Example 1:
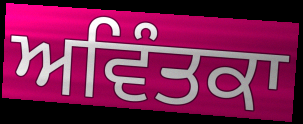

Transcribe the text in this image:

ਅਵਿੰਤਕਾ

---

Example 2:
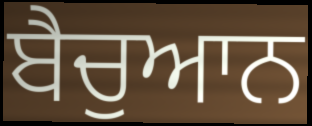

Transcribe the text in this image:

ਬੈਚੁਆਨ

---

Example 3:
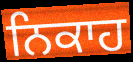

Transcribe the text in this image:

ਨਿਕਾਹ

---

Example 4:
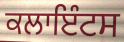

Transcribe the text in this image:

ਕਲਾਇੰਟਸ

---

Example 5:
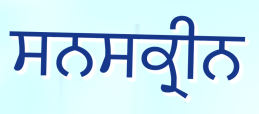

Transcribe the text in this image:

ਸਨਸਕ੍ਰੀਨ